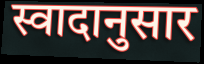
स्वादानुसार